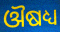
ଔଷଧ୍ୟ